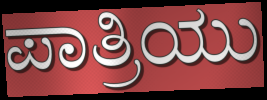
ಪಾತ್ರಿಯು